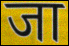
जा